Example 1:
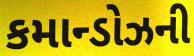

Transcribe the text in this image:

કમાન્ડોઝની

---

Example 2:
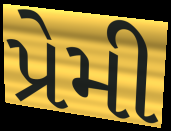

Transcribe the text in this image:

પ્રેમી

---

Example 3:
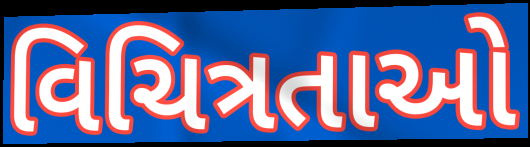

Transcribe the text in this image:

વિચિત્રતાઓ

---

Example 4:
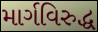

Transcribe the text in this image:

માર્ગવિરુદ્ધ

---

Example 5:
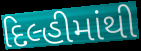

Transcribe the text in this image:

દિલ્હીમાંથી